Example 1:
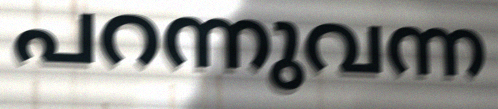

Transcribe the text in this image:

പറന്നുവന്ന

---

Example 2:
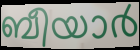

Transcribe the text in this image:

ബീയാർ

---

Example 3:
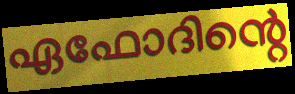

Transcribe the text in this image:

ഏഫോദിന്റെ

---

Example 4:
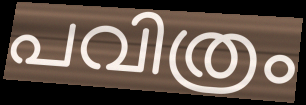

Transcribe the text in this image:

പവിത്രം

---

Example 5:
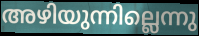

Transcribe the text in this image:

അഴിയുന്നില്ലെന്നു